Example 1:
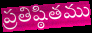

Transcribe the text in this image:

ప్రతిష్ఠితము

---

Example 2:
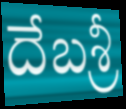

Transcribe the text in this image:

దేబశ్రీ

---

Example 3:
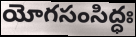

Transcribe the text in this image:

యోగసంసిద్ధః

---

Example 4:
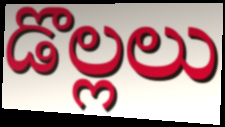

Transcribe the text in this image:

డొల్లలు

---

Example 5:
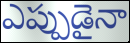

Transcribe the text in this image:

ఎప్పుడైనా